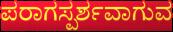
ಪರಾಗಸ್ಪರ್ಶವಾಗುವ